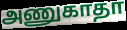
அணுகாதா